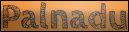
Palnadu